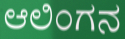
ಆಲಿಂಗನ